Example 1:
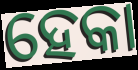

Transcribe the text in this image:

ହେକା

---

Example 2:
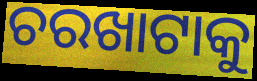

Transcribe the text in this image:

ଚରଖାଟାକୁ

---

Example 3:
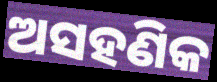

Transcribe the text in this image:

ଅସହଣିକ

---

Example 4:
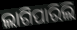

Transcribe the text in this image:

ଲାଗିପାରିଲି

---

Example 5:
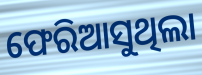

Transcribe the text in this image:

ଫେରିଆସୁଥିଲା